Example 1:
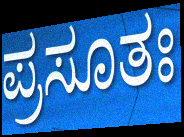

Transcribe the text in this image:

ಪ್ರಸೂತಃ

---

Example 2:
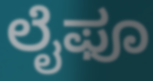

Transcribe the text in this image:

ಲೈಫೂ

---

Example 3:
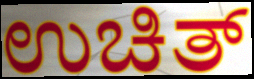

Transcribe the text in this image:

ಉಚಿತ್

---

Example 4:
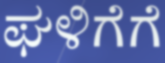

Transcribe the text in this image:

ಘಳಿಗೆಗೆ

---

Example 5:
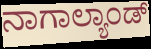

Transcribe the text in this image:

ನಾಗಾಲ್ಯಾಂಡ್